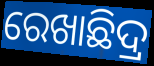
ରେଖାଛିଦ୍ର